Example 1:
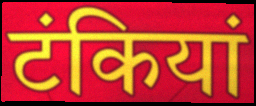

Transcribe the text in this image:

टंकियां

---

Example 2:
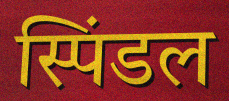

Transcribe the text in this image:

स्पिंडल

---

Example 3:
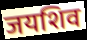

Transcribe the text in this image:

जयशिव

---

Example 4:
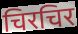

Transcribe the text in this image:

चिरचिर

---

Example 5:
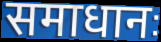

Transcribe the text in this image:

समाधानः